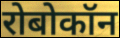
रोबोकॉन